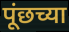
पूंछच्या